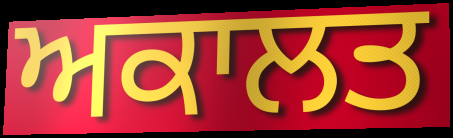
ਅਕਾਲਤ